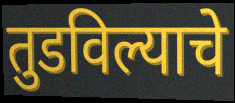
तुडविल्याचे